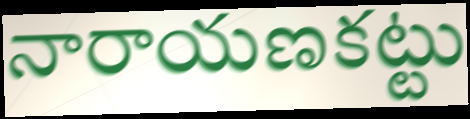
నారాయణకట్టు